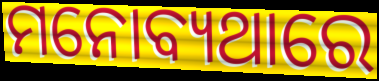
ମନୋବ୍ୟଥାରେ